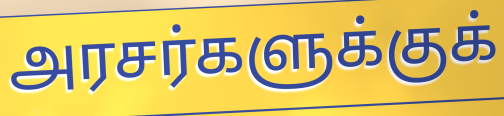
அரசர்களுக்குக்